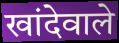
खांदेवाले